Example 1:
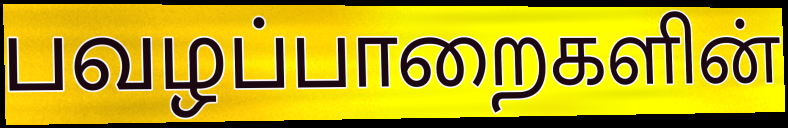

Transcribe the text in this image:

பவழப்பாறைகளின்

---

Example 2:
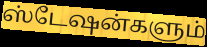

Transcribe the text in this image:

ஸ்டேஷன்களும்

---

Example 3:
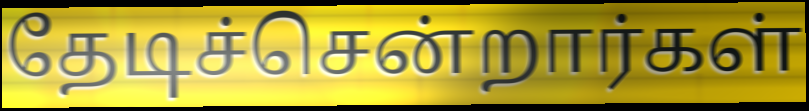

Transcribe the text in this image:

தேடிச்சென்றார்கள்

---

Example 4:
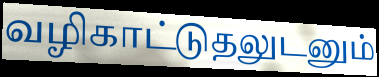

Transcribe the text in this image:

வழிகாட்டுதலுடனும்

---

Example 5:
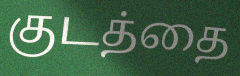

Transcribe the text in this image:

குடத்தை